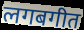
लगबगीत